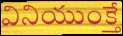
వినియుంక్తే